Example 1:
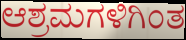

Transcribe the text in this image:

ಆಶ್ರಮಗಳಿಗಿಂತ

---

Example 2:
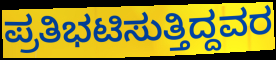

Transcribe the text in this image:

ಪ್ರತಿಭಟಿಸುತ್ತಿದ್ದವರ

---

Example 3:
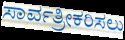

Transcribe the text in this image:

ಸಾರ್ವತ್ರೀಕರಿಸಲು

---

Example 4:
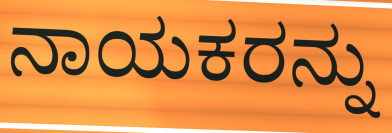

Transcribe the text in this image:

ನಾಯಕರನ್ನು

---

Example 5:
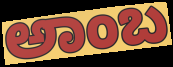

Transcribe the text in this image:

ಅಾಂಬ